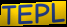
TEPL